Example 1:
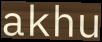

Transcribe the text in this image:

akhu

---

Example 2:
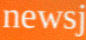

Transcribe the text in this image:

newsj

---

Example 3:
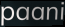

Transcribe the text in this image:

paani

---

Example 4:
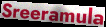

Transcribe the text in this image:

Sreeramula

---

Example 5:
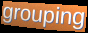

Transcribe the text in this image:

grouping